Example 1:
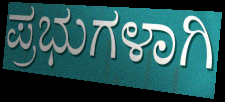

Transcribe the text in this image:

ಪ್ರಭುಗಳಾಗಿ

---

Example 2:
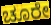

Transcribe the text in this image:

ಚೂರೇ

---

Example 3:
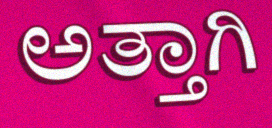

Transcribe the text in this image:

ಅತ್ತಾಗಿ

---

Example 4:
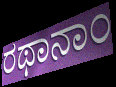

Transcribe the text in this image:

ರಥಾನಾಂ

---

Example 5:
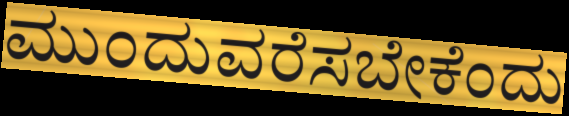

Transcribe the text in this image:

ಮುಂದುವರೆಸಬೇಕೆಂದು